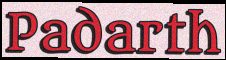
Padarth